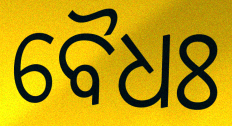
ବୈଧଃ